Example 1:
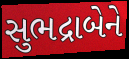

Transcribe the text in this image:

સુભદ્રાબેને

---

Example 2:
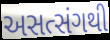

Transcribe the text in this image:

અસત્સંગથી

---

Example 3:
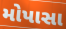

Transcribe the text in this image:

મોપાસા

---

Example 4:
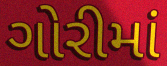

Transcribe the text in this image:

ગોરીમાં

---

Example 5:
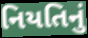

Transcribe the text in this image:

નિયતિનું